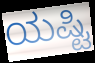
ಯಷ್ಟಿ